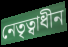
নেতৃত্বাধীন